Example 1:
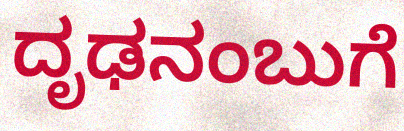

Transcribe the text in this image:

ದೃಢನಂಬುಗೆ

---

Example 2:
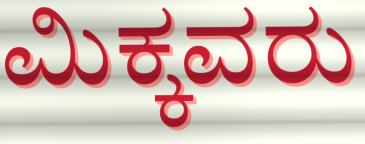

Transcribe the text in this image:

ಮಿಕ್ಕವರು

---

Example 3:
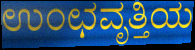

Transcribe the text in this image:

ಉಂಛವೃತ್ತಿಯ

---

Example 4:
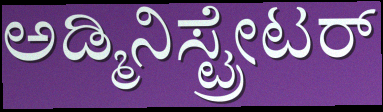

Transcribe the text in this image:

ಅಡ್ಮಿನಿಸ್ಟ್ರೇಟರ್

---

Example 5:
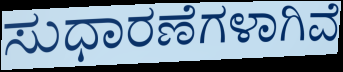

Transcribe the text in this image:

ಸುಧಾರಣೆಗಳಾಗಿವೆ